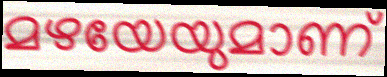
മഴയേയുമാണ്